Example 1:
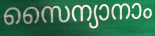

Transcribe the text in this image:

സൈന്യാനാം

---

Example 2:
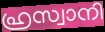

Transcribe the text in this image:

ഹ്രസ്വാനി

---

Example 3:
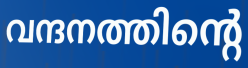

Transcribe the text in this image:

വന്ദനത്തിന്റെ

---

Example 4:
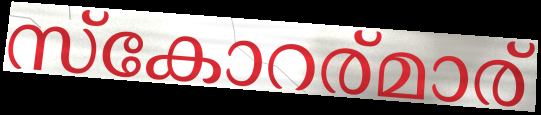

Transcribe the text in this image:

സ്കോറര്മാര്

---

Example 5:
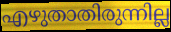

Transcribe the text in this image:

എഴുതാതിരുന്നില്ല